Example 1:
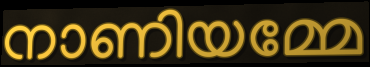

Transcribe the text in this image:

നാണിയമ്മേ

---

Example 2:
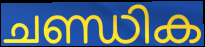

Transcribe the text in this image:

ചണ്ഡിക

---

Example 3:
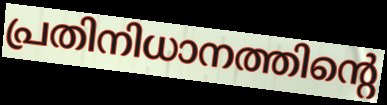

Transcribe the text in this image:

പ്രതിനിധാനത്തിന്റെ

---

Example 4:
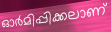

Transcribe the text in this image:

ഓർമിപ്പിക്കലാണ്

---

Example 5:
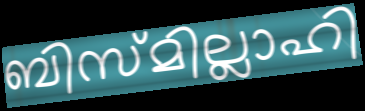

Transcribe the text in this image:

ബിസ്മില്ലാഹി